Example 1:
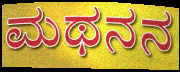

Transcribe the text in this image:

ಮಥನನ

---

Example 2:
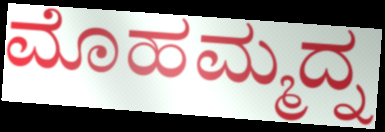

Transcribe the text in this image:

ಮೊಹಮ್ಮದ್ನ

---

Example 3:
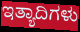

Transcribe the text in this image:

ಇತ್ಯಾದಿಗಳು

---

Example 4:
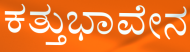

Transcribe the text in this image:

ಕತ್ತುಭಾವೇನ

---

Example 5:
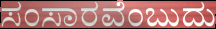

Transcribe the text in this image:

ಸಂಸಾರವೆಂಬುದು